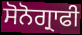
ਸੋਨੋਗ੍ਰਾਫੀ